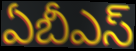
ఏబీఎస్